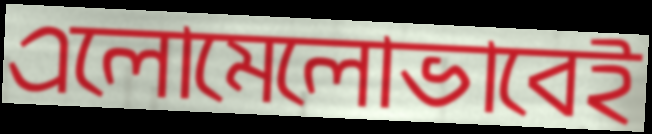
এলোমেলোভাবেই